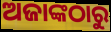
ଅଜାଙ୍କଠାରୁ